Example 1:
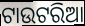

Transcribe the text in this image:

ଟାଉଟରିଆ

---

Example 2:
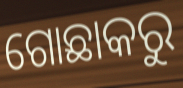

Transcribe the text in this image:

ଗୋଛାକରୁ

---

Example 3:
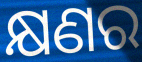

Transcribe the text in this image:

କ୍ଷଣର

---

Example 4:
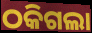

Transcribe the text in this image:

ଠକିଗଲା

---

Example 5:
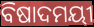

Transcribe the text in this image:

ବିଷାଦମୟୀ